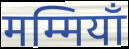
मम्मियाँ